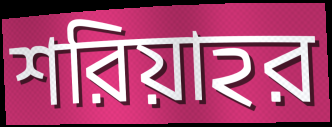
শরিয়াহর